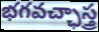
భగవచ్ఛాస్త్ర